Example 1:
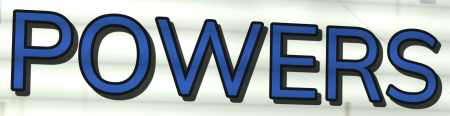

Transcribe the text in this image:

POWERS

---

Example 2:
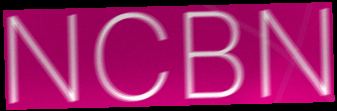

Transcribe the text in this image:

NCBN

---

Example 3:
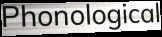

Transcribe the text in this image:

Phonological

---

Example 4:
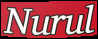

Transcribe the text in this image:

Nurul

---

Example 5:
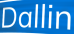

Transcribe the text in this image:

Dallin